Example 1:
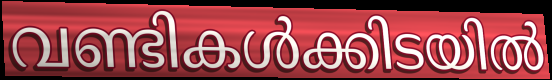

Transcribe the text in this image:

വണ്ടികൾക്കിടയിൽ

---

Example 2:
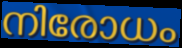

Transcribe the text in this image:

നിരോധം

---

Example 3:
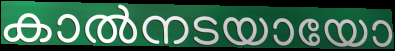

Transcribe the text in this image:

കാൽനടയായോ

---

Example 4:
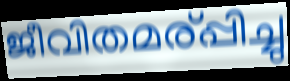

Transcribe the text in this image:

ജീവിതമര്പ്പിച്ചു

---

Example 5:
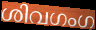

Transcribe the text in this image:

ശിവഗംഗ